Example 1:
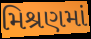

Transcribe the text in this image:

મિશ્રણમાં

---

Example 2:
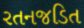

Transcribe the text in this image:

રતનજડિત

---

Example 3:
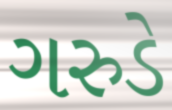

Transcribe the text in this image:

ગરુડે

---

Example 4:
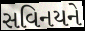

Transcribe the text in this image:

સવિનયને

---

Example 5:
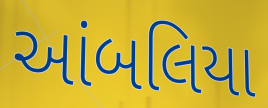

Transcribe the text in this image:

આંબલિયા